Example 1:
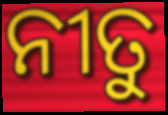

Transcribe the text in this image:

ନୀତୁ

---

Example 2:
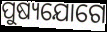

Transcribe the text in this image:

ପୁଷ୍ୟଯୋଗେ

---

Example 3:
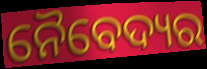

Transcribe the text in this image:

ନୈବେଦ୍ୟର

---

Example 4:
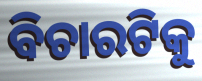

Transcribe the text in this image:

ବିଚାରଟିକୁ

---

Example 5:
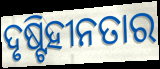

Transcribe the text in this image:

ଦୃଷ୍ଟିହୀନତାର